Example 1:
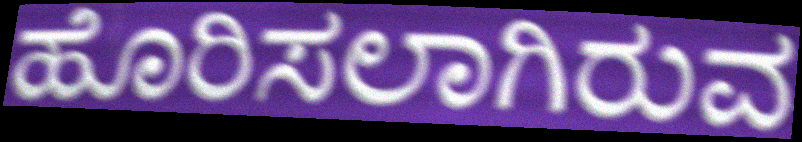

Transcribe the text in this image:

ಹೊರಿಸಲಾಗಿರುವ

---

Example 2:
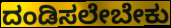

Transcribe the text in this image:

ದಂಡಿಸಲೇಬೇಕು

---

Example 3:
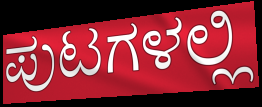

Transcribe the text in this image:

ಪುಟಗಳಲ್ಲಿ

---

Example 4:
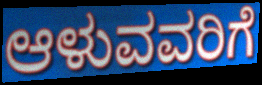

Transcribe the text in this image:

ಆಳುವವರಿಗೆ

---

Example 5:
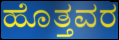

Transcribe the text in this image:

ಹೊತ್ತವರ